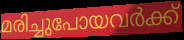
മരിച്ചുപോയവർക്ക്